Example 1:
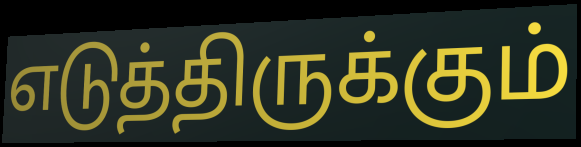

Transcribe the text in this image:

எடுத்திருக்கும்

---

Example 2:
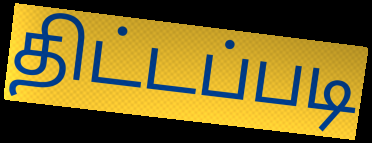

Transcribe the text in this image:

திட்டப்படி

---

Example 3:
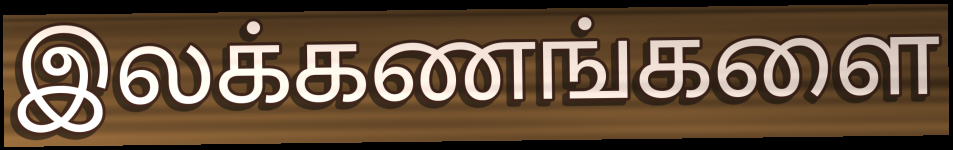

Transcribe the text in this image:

இலக்கணங்களை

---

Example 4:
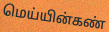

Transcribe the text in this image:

மெய்யின்கண்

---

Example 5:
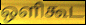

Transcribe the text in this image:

ஒளிகூட